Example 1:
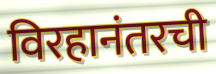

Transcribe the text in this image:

विरहानंतरची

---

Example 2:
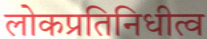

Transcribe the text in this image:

लोकप्रतिनिधीत्व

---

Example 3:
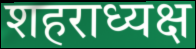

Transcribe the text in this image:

शहराध्यक्ष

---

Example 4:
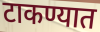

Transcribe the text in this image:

टाकण्यात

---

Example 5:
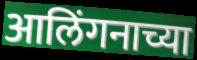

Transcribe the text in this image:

आलिंगनाच्या